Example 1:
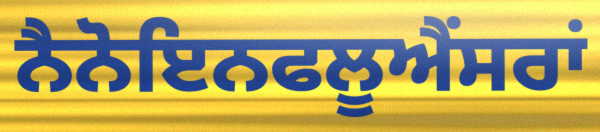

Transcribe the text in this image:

ਨੈਨੋਇਨਫਲੂਐਂਸਰਾਂ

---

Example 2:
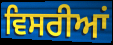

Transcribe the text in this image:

ਵਿਸਰੀਆਂ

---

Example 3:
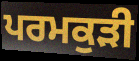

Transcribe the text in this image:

ਪਰਮਕੁੜੀ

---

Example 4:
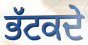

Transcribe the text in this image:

ਭੱਟਕਦੇ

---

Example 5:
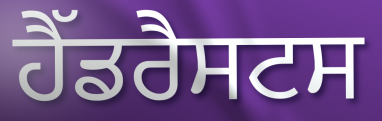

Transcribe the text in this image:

ਹੈੱਡਰੈਸਟਸ